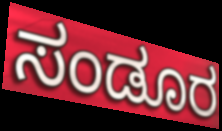
ಸಂಡೂರ